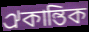
ঐকান্তিক